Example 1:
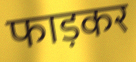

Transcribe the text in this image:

फाड़कर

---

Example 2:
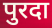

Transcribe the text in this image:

पुरदा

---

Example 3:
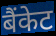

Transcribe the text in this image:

बैंकेट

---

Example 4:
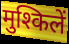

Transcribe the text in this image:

मुश्किलें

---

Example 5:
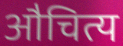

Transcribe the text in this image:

औचित्‍य